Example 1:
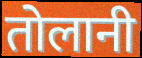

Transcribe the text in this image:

तोलानी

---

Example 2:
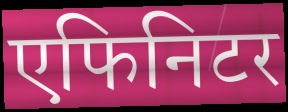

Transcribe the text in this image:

एफिनिटर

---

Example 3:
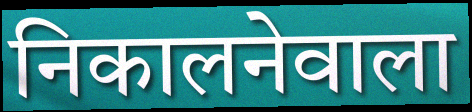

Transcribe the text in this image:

निकालनेवाला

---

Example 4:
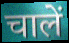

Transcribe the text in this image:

चालें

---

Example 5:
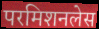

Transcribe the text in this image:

परमिशनलेस